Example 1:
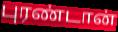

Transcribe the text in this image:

புரண்டான்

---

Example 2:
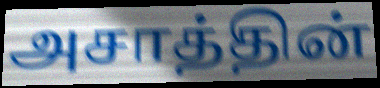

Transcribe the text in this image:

அசாத்தின்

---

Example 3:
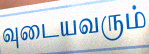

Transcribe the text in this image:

வுடையவரும்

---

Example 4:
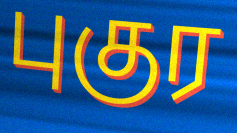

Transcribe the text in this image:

புகுர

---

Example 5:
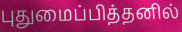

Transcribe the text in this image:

புதுமைப்பித்தனில்